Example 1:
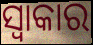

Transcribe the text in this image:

ସ୍ୱାକାର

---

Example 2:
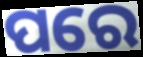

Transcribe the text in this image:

ପରେ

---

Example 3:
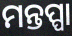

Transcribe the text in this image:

ମନ୍ତପ୍ପା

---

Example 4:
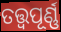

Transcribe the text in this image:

ତତ୍ତ୍ୱପୂର୍ଣ୍ଣ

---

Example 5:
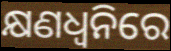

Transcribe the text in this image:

କ୍ଷଣଧ୍ୱନିରେ